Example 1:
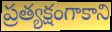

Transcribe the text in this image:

ప్రత్యక్షంగాకాని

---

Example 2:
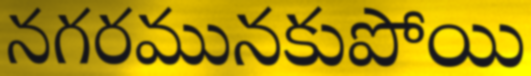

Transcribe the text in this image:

నగరమునకుపోయి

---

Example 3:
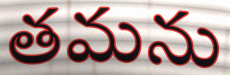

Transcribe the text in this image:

తమను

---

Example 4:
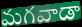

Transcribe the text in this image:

మగవాడా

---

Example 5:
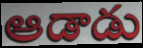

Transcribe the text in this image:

ఆడాడు